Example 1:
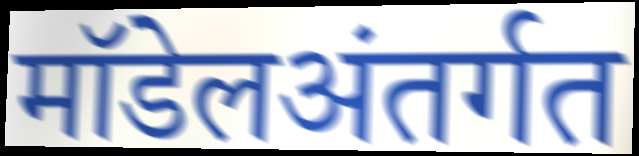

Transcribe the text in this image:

मॉडेलअंतर्गत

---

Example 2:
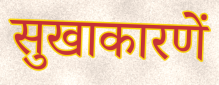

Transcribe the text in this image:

सुखाकारणें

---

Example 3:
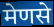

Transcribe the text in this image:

मेणसे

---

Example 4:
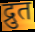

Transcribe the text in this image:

द्रुत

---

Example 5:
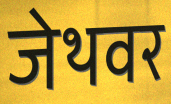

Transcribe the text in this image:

जेथवर